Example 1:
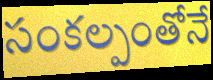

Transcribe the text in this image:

సంకల్పంతోనే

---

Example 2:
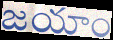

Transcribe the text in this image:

జయాం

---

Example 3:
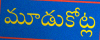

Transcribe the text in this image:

మూడుకోట్ల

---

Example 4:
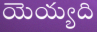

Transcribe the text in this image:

యెయ్యది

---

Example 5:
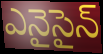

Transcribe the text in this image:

ఎనైసైన్